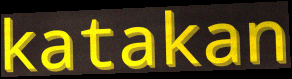
katakan